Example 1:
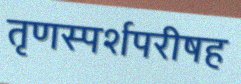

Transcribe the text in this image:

तृणस्पर्शपरीषह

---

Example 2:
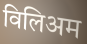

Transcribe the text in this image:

विलिअम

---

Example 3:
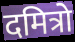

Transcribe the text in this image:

दमित्रो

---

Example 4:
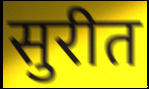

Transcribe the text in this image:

सुरीत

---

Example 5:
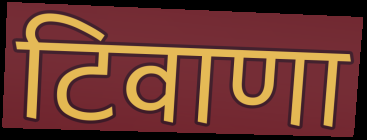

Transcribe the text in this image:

टिवाणा